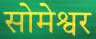
सोमेश्वर